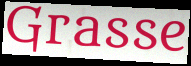
Grasse